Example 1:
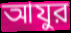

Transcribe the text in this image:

আযুর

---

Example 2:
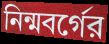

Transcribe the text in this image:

নিন্মবর্গের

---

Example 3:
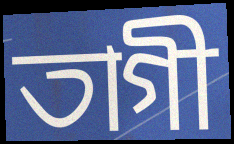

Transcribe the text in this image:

তাগী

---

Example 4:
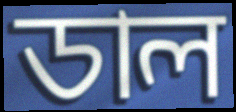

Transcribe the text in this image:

ডাল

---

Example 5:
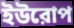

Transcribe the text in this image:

ইউরোপ